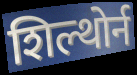
शिल्थोर्न